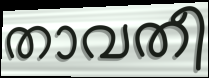
താവതീ